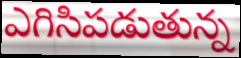
ఎగిసిపడుతున్న